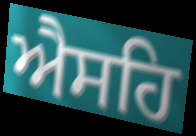
ਐਸਹਿ